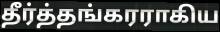
தீர்த்தங்கரராகிய